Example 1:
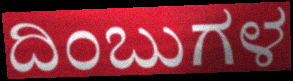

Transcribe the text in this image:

ದಿಂಬುಗಳ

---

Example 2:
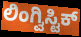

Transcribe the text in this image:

ಲಿಂಗ್ವಿಸ್ಟಿಕ್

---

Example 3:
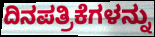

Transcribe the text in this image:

ದಿನಪತ್ರಿಕೆಗಳನ್ನು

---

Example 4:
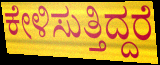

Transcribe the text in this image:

ಕೇಳಿಸುತ್ತಿದ್ದರೆ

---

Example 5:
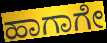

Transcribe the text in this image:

ಹಾಗಾಗೇ